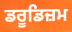
ਡਰੂਡਿਜ਼ਮ